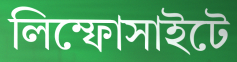
লিম্ফোসাইটে